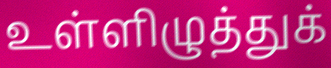
உள்ளிழுத்துக்